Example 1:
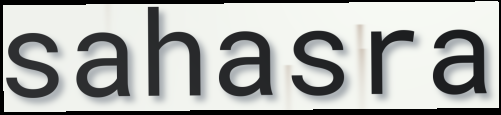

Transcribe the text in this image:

sahasra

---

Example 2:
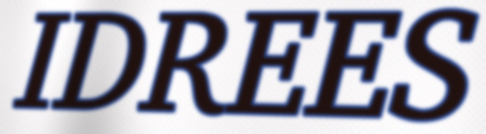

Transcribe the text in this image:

IDREES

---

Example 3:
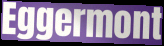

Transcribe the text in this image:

Eggermont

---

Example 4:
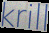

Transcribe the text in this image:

krill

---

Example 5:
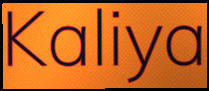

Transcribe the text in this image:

Kaliya